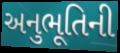
અનુભૂતિની